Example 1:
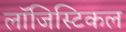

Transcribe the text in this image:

लॉजिस्टिकल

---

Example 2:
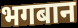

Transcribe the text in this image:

भगबान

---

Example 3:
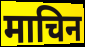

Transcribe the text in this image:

माचिन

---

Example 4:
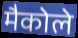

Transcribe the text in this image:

मैकोले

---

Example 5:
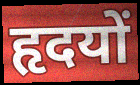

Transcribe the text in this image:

हृदयों